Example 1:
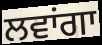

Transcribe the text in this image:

ਲਵਾਂਗਾ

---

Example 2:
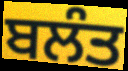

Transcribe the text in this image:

ਬਲੰਤ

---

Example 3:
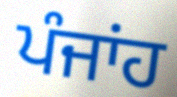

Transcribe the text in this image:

ਪੰਜਾਂਹ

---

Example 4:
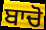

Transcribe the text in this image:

ਬਾਚੋ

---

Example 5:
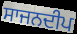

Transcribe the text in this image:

ਸਾਜਨਦੀਪ